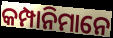
କମ୍ପାନିମାନେ